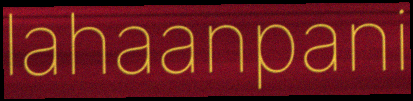
lahaanpani